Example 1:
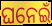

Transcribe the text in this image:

ଘନେଇଁ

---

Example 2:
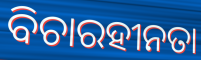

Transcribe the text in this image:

ବିଚାରହୀନତା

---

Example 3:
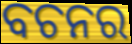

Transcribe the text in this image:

ବଚନର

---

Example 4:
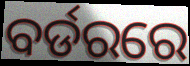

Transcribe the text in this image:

ବର୍ଡରରେ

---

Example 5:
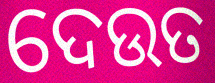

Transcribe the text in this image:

ଦେଉତ